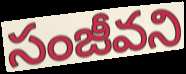
సంజీవని